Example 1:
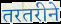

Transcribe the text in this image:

तरतरीने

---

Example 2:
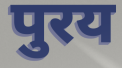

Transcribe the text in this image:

पुरय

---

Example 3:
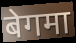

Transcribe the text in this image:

बेगमा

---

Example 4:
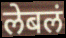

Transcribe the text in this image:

लेबलं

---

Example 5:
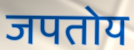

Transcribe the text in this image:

जपतोय